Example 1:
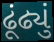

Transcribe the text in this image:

ઢૂંઢ્યું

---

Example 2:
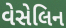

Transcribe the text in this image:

વેસેલિન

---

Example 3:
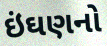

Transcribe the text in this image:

ઇંઘણનો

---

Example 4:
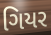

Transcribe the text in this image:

ગિયર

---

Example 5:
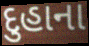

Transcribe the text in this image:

દુહાના